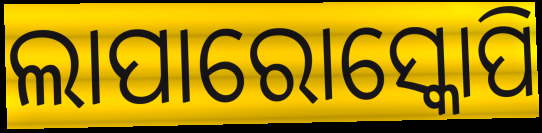
ଲାପାରୋସ୍କୋପି